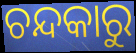
ଚନ୍ଦକାରୁ